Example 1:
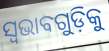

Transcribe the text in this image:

ସ୍ୱଭାବଗୁଡ଼ିକୁ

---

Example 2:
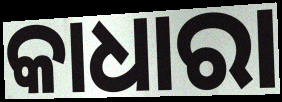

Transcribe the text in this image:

କାଧାରା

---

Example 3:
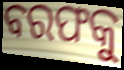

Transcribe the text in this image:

ବରଫକୁ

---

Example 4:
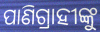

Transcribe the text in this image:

ପାଣିଗ୍ରାହୀଙ୍କୁ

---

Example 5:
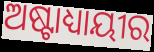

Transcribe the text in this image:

ଅଷ୍ଟାଧ୍ଯାୟୀର